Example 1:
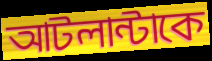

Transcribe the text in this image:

আটলান্টাকে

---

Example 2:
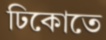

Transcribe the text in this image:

ঢিকোতে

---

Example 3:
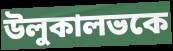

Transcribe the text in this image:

উলুকালভকে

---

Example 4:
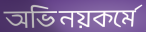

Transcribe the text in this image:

অভিনয়কর্মে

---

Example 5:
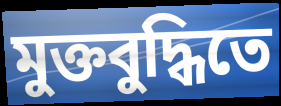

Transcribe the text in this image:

মুক্তবুদ্ধিতে